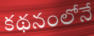
కథనంలోనే